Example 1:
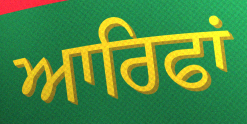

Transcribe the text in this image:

ਆਰਿਫਾਂ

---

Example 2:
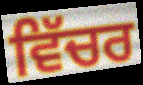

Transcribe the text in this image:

ਵਿੱਚਰ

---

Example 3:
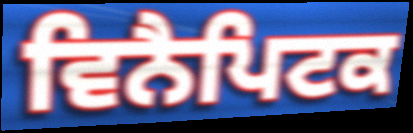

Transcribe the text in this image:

ਵਿਨੈਪਿਟਕ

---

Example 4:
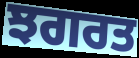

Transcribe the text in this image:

ਝਗਰਤ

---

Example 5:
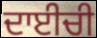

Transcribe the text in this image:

ਦਾਈਚੀ